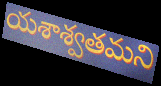
యశాశ్వతమని